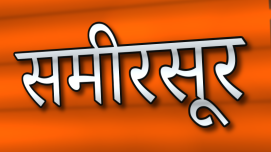
समीरसूर